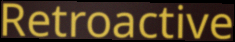
Retroactive